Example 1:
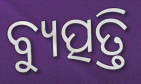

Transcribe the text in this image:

ବ୍ୟୁତ୍ପତ୍ତି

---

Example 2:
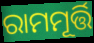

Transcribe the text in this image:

ରାମମୂର୍ତ୍ତି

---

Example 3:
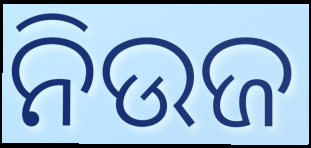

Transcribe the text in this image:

ନିଉଜ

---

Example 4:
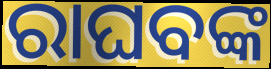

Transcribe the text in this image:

ରାଘବଙ୍କ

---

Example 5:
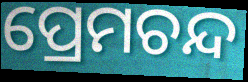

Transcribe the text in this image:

ପ୍ରେମଚନ୍ଦ